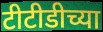
टीटीडीच्या